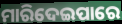
ମାରିଦେଇପାରେ